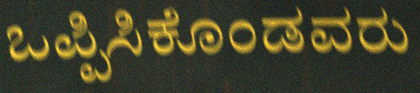
ಒಪ್ಪಿಸಿಕೊಂಡವರು